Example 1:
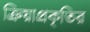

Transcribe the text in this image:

ক্রিয়াপ্রকৃতির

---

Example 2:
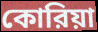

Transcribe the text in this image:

কোরিয়া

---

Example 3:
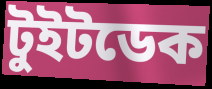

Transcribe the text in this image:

টুইটডেক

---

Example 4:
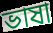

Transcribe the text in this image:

ভাষা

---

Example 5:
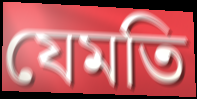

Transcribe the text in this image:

যেমতি